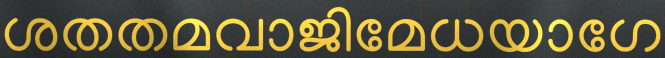
ശതതമവാജിമേധയാഗേ